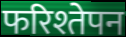
फरिश्तेपन